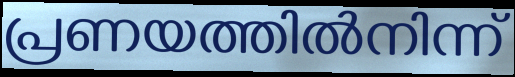
പ്രണയത്തിൽനിന്ന്